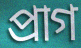
প্ৰাগ